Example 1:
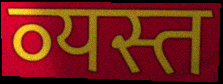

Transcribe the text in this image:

व्‍यस्‍त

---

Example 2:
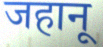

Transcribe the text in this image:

जहानू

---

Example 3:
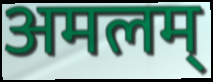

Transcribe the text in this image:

अमलम्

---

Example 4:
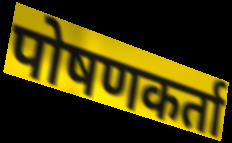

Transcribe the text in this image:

पोषणकर्ता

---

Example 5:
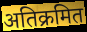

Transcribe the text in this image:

अतिक्रमित